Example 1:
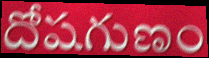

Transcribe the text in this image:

దోషగుణం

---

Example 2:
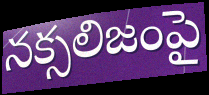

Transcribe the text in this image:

నక్సలిజంపై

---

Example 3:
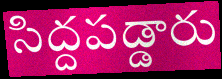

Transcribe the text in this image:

సిద్దపడ్డారు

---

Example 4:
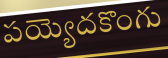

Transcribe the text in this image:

పయ్యెదకొంగు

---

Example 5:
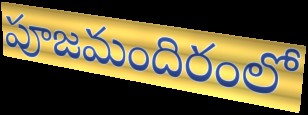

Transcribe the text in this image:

పూజమందిరంలో